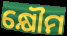
କ୍ଷୌମ